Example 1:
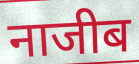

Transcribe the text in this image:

नाजीब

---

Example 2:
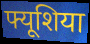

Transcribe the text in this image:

फ्यूशिया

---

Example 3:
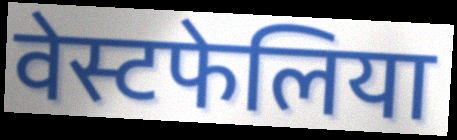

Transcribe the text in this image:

वेस्टफेलिया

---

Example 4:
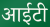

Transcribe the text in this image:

आईटी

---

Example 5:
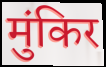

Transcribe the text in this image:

मुंकिर